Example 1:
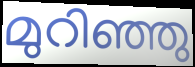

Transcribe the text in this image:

മുറിഞ്ഞു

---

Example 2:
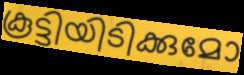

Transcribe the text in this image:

കൂട്ടിയിടിക്കുമോ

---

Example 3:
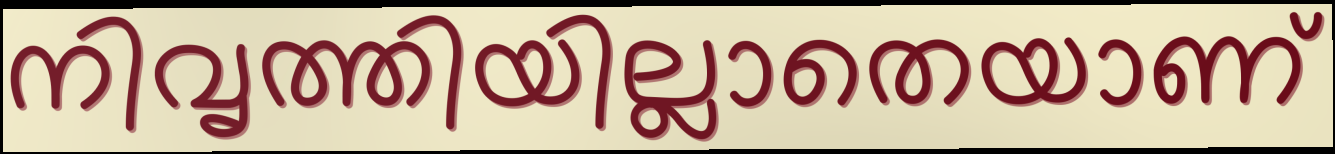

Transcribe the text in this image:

നിവൃത്തിയില്ലാതെയാണ്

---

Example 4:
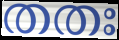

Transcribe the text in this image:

തതഃ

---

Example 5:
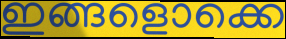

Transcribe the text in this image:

ഇങ്ങളൊക്കെ